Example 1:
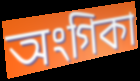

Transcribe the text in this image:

অংগিকা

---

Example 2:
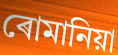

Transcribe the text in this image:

ৰোমানিয়া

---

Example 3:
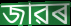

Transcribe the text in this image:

জাৱৰ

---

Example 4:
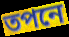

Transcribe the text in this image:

তপনে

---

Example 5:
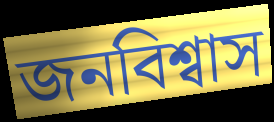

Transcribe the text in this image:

জনবিশ্বাস